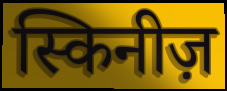
स्किनीज़